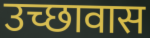
उच्छावास